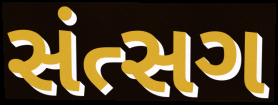
સંત્સગ